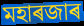
মহাৰজাৰ